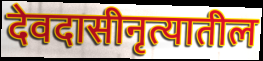
देवदासीनृत्यातील